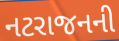
નટરાજનની